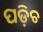
ପଡ଼ିଚ